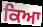
ਕਿਆ